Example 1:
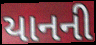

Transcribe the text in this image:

યાનની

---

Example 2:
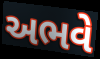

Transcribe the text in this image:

અભવે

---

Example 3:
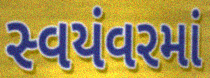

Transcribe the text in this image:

સ્વયંવરમાં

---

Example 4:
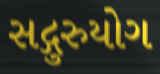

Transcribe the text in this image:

સદ્ગુરુયોગ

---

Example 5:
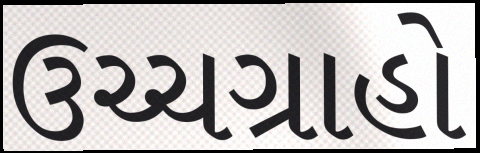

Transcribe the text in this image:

ઉચ્ચગ્રાહો